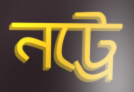
নট্ৰে